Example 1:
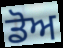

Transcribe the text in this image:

ਡੋਅ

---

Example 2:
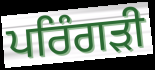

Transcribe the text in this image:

ਪਰਿੰਗੜੀ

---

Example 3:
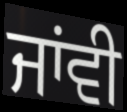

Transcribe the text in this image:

ਜਾਂਵੀ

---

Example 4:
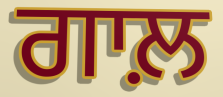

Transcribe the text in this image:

ਗਾਲ਼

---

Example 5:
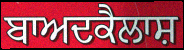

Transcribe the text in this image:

ਬਾਅਦਕੈਲਾਸ਼